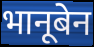
भानूबेन